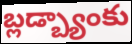
బ్లడ్బ్యాంకు